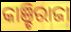
କାଞ୍ଚିରାଜା